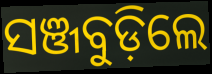
ସଞ୍ଜବୁଡ଼ିଲେ